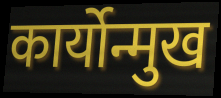
कार्योन्मुख